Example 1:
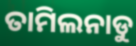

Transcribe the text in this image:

ତାମିଲନାଡୁ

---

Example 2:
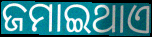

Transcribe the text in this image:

ଜମାଇଥାଏ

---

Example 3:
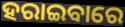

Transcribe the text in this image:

ହରାଇବାରେ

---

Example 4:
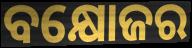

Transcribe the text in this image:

ବକ୍ଷୋଜର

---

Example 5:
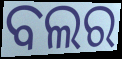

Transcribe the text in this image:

ବଲର